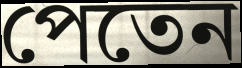
পেতেন